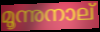
മൂന്നുനാല്